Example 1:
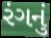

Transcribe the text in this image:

રંગનું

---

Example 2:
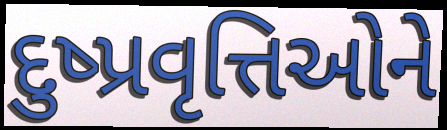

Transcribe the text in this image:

દુષ્પ્રવૃત્તિઓને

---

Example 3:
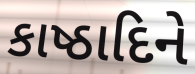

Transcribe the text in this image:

કાષ્ઠાદિને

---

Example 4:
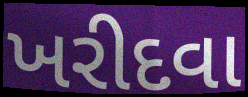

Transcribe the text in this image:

ખરીદવા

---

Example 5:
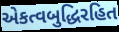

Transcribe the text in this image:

એકત્વબુદ્ધિરહિત